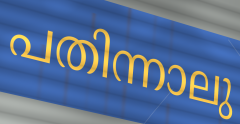
പതിന്നാലു